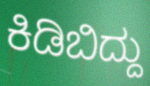
ಕಿಡಿಬಿದ್ದು